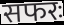
सफरः